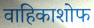
वाहिकाशोफ